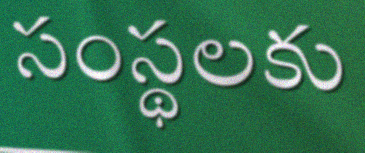
సంస్థలకు